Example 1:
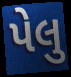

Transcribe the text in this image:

પેલુ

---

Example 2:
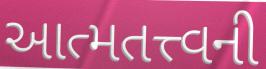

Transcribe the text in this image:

આત્મતત્ત્વની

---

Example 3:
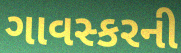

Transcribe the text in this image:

ગાવસ્કરની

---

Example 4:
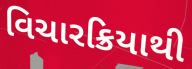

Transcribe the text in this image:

વિચારક્રિયાથી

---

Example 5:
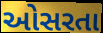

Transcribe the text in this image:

ઓસરતા